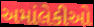
અમાંલેકીઓ